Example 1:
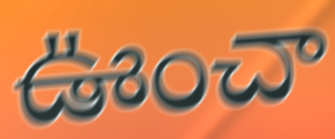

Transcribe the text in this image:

ఊంచా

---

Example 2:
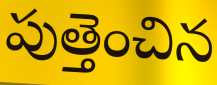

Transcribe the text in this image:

పుత్తెంచిన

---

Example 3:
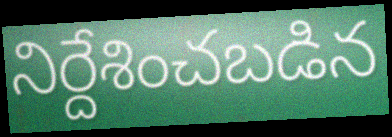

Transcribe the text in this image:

నిర్దేశించబడిన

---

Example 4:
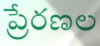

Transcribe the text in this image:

ప్రేరణల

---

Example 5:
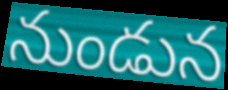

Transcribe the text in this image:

నుండున